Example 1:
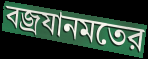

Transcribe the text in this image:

বজ্রযানমতের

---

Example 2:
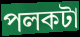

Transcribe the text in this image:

পলকটা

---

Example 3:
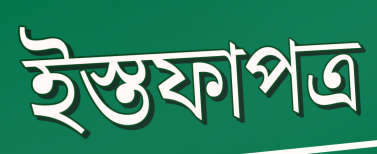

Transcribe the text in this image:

ইস্তফাপত্র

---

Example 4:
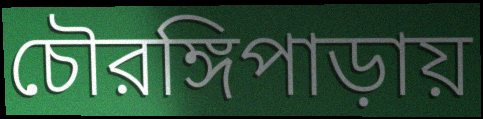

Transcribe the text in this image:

চৌরঙ্গিপাড়ায়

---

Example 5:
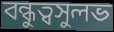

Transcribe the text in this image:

বন্ধুত্বসুলভ